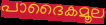
പാദൈകമൂല